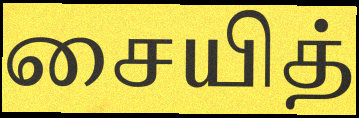
சையித்